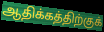
ஆதிக்கத்திற்குக்